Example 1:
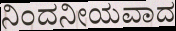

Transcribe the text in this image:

ನಿಂದನೀಯವಾದ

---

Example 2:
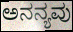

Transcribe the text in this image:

ಅನನ್ಯವು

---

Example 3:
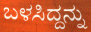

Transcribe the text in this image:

ಬಳಸಿದ್ದನ್ನು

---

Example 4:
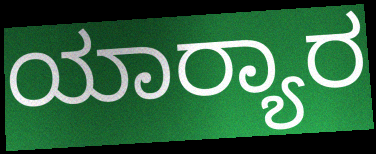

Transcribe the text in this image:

ಯಾರ‍್ಯಾರ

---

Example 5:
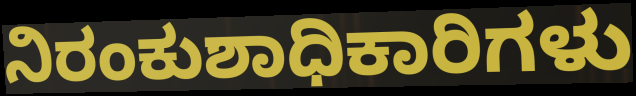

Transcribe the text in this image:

ನಿರಂಕುಶಾಧಿಕಾರಿಗಳು